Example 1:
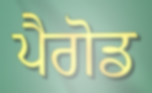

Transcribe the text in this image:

ਪੈਗੋਡ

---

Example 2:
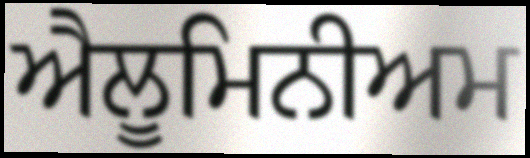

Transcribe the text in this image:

ਐਲੂਮਿਨੀਅਮ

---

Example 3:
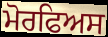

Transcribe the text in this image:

ਮੋਰਫਿਅਸ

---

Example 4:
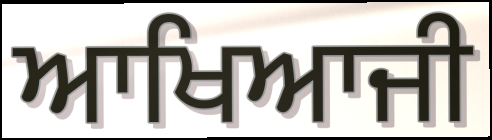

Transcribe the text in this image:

ਆਖਿਆਜੀ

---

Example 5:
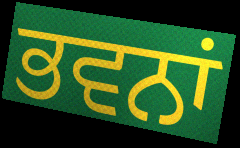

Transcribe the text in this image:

ਭਵਨਾਂ